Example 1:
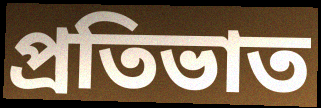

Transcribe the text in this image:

প্রতিভাত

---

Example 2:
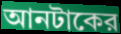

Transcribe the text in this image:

আনটাকের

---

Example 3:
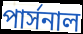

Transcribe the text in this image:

পার্সনাল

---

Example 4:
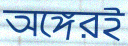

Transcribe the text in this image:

অঙ্গেরই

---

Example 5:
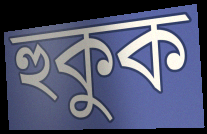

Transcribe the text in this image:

হুকুক